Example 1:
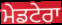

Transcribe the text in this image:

ਮੇਡਟੇਰਾ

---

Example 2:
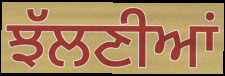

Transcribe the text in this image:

ਝੱਲਣੀਆਂ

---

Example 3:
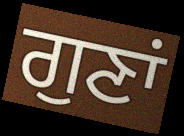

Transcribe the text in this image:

ਗੁਣਾਂ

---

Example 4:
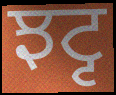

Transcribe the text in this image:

ਝਟ੍ਟ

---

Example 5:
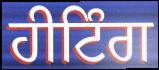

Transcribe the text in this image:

ਹੀਟਿੰਗ